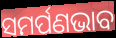
ସମର୍ପଣଭାବ